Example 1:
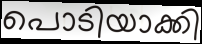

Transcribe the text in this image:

പൊടിയാക്കി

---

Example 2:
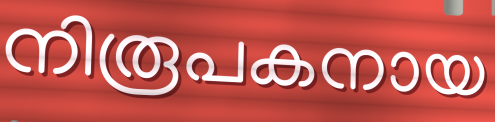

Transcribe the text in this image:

നിരൂപകനായ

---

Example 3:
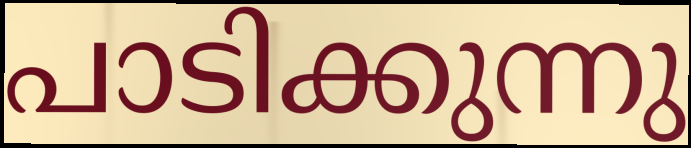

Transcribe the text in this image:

പാടിക്കുന്നു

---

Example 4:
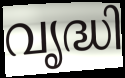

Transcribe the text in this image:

വൃദ്ധി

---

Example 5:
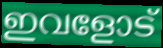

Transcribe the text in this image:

ഇവളോട്